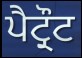
ਪੈਟ੍ਰੌਟ